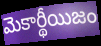
మెకార్థీయిజం